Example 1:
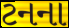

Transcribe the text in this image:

ટનના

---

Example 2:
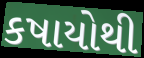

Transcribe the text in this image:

કષાયોથી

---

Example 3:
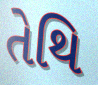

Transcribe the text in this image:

તેથિ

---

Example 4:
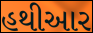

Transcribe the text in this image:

હથીઆર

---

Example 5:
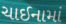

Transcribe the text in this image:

ચાઈનામાં